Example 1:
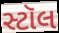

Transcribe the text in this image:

સ્ટૉલ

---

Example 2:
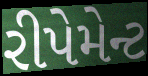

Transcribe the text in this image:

રીપેમેન્ટ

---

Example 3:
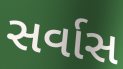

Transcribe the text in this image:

સર્વાસ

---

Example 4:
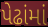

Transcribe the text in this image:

પેઢાંમાં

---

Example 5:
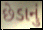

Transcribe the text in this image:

છેડાનું